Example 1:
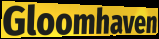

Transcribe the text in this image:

Gloomhaven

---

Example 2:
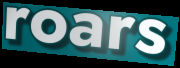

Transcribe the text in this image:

roars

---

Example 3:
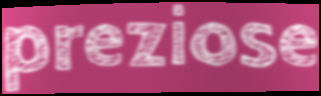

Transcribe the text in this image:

preziose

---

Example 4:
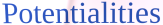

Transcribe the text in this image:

Potentialities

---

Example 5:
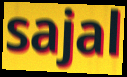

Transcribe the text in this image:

sajal